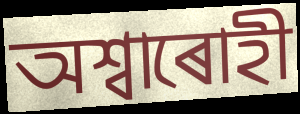
অশ্বাৰোহী